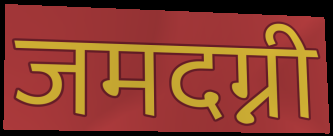
जमदग्नी